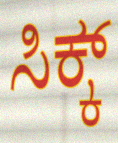
ಸಿಕ್ಕ್